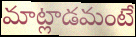
మాట్లాడమంటే